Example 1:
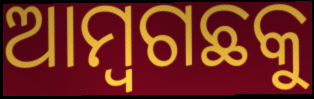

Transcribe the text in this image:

ଆମ୍ବଗଛକୁ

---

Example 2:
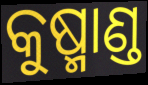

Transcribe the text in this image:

କୁଷ୍ମାଣ୍ଡ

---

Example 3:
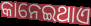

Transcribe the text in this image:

କାନେଇଥାଏ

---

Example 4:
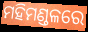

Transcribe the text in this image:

ମହିମଣ୍ଡଳରେ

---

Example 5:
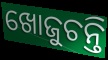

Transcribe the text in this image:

ଖୋଜୁଚନ୍ତି